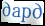
dapd